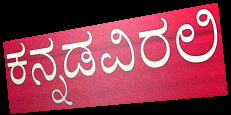
ಕನ್ನಡವಿರಲಿ